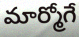
మార్మోగే